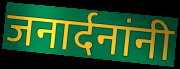
जनार्दनांनी